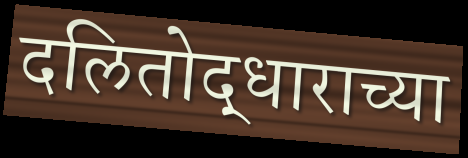
दलितोद्धाराच्या